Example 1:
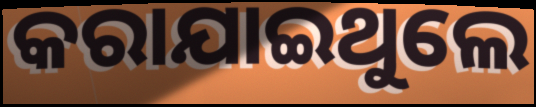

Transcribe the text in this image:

କରାଯାଇଥୁଲେ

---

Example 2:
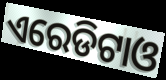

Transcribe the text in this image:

ଏରେଡିଟାଓ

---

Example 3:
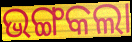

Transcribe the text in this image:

ଭଙ୍ଗକଲା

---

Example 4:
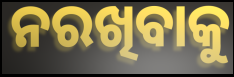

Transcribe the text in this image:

ନରଖିବାକୁ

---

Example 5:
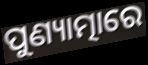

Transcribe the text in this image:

ପୁଣ୍ୟାତ୍ମାରେ